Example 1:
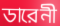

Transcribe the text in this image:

ডারেনী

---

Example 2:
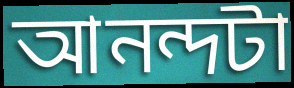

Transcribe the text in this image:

আনন্দটা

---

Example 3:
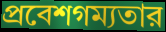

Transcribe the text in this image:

প্রবেশগম্যতার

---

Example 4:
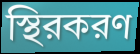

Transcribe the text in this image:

স্থিরকরণ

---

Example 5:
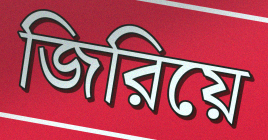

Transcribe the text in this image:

জিরিয়ে